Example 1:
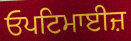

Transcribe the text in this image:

ਓਪਟਿਮਾਈਜ਼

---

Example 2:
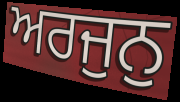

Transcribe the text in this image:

ਅਰਜੁਨੁ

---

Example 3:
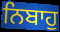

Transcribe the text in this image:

ਨਿਬਾਹੁ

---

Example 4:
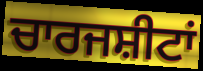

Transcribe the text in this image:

ਚਾਰਜਸ਼ੀਟਾਂ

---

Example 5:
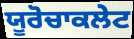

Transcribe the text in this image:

ਯੂਰੋਚਾਕਲੇਟ